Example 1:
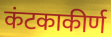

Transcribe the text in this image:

कंटकाकीर्ण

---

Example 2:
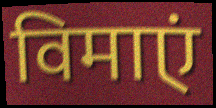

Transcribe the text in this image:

विमाएं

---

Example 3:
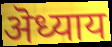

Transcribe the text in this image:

ऄध्याय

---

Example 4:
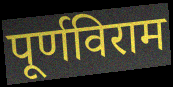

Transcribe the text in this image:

पूर्णविराम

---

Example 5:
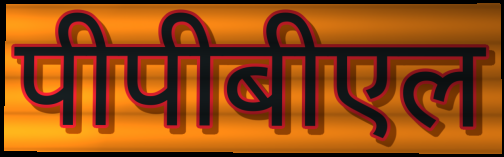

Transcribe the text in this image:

पीपीबीएल